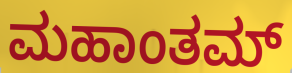
ಮಹಾಂತಮ್